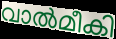
വാൽമീകി